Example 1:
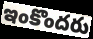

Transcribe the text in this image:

ఇంకొందరు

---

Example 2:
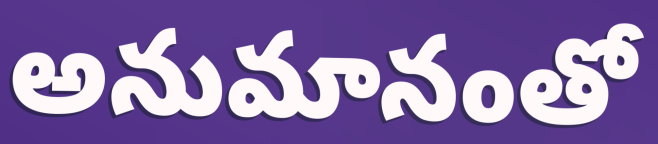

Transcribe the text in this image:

అనుమానంతో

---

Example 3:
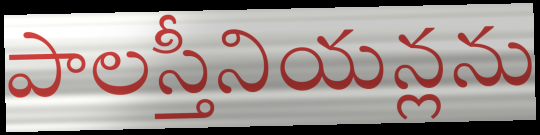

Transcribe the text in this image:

పాలస్తీనియన్లను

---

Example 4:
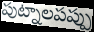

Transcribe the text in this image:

పుట్నాలపప్పు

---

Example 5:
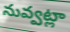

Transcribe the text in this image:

నువ్వట్లా